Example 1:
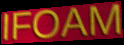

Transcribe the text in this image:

IFOAM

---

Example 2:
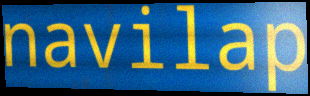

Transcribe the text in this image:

navilap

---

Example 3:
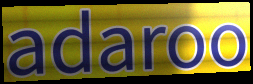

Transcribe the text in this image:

adaroo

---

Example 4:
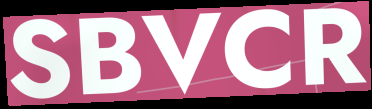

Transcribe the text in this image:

SBVCR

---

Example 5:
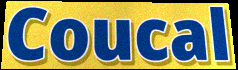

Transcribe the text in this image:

Coucal